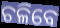
ଚଳିବେ